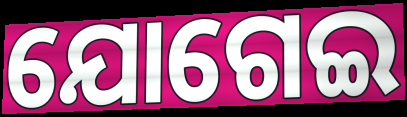
ଯୋଗେଇ